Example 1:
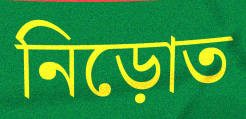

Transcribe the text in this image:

নিড়োত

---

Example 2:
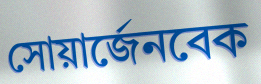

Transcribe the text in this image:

সোয়ার্জেনবেক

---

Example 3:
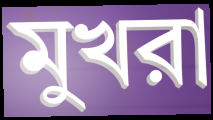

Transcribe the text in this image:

মুখরা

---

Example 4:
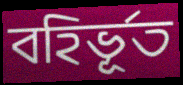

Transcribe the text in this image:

বহির্ভূত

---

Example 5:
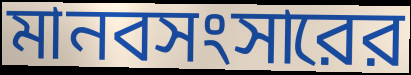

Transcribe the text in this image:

মানবসংসারের